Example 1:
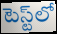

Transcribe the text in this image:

టెస్ట్‌లో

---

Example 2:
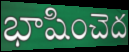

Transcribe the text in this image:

భాషించెద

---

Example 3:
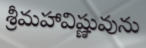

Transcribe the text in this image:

శ్రీమహావిష్ణువును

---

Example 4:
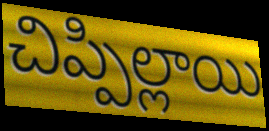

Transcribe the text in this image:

చిప్పిల్లాయి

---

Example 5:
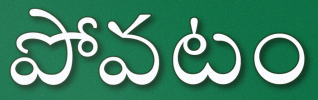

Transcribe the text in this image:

పోవటం